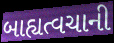
બાહ્યત્વચાની